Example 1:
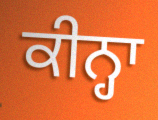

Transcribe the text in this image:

ਕੀਨ੍ਹ੍ਹਾ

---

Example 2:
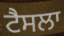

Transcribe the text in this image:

ਟੈਸਲਾ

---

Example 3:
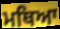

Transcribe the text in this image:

ਮਥਿਆ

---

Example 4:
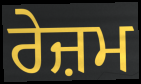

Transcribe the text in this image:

ਰੇਜ਼ਮ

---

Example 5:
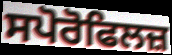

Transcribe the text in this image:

ਸਪੋਰੋਫਿਲਜ਼